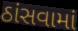
ઠાંસવામાં